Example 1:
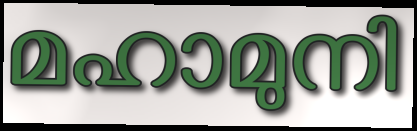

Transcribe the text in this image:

മഹാമുനി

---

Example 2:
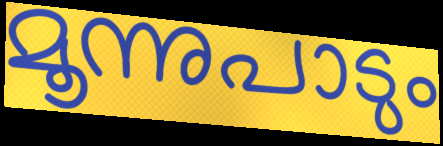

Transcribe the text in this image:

മൂന്നുപാടും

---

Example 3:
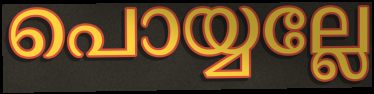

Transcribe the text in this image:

പൊയ്യല്ലേ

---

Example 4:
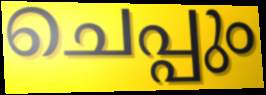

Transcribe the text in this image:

ചെപ്പും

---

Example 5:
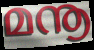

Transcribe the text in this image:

മനൂ